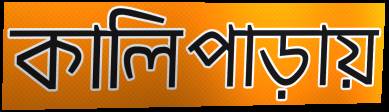
কালিপাড়ায়